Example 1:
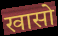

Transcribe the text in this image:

खासो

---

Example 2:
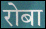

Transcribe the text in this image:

रोबा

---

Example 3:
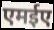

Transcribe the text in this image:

एमईए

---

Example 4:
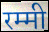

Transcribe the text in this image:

रम्मी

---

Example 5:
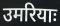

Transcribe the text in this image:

उमरियाः